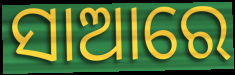
ସାଆରେ